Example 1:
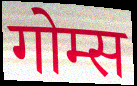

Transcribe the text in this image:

गोम्स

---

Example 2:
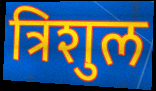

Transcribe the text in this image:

त्रिशुल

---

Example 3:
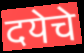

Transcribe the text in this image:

दयेचे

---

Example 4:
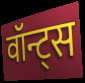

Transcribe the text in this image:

वॉन्ट्स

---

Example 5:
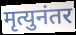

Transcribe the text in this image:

मृत्युनंतर